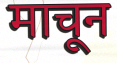
माचून